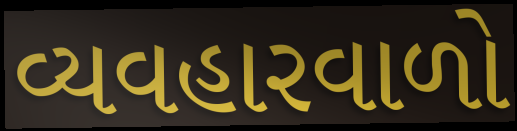
વ્યવહારવાળો